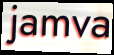
jamva